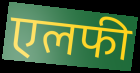
एलफी